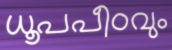
ധൂപപീഠവും